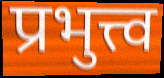
प्रभुत्त्व